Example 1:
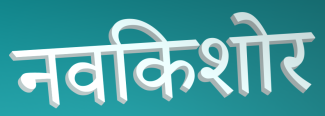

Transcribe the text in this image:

नवकिशोर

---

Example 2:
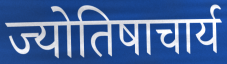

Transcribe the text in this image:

ज्योतिषाचार्य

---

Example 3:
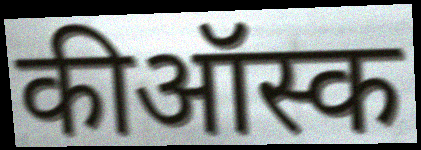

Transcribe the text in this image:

कीऑस्क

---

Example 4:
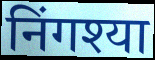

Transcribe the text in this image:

निंगश्या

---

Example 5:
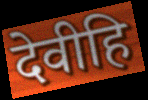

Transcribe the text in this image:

देवीहि